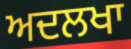
ਅਦਲਖਾ